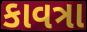
કાવત્રા